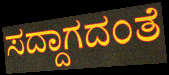
ಸದ್ದಾಗದಂತೆ